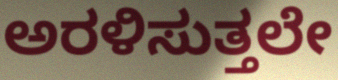
ಅರಳಿಸುತ್ತಲೇ